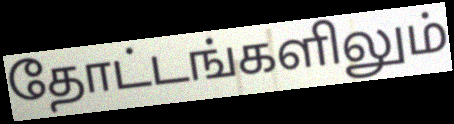
தோட்டங்களிலும்